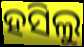
ହସିଲୁ